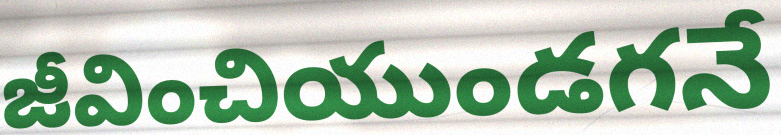
జీవించియుండగనే